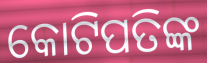
କୋଟିପତିଙ୍କ